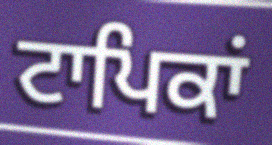
ਟਾਪਿਕਾਂ